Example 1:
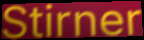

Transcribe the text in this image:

Stirner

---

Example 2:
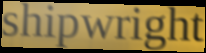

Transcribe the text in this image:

shipwright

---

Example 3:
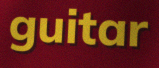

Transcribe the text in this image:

guitar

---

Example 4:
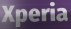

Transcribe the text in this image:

Xperia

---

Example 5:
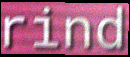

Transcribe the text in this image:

rind